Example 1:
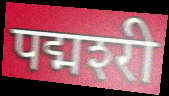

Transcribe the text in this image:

पद्मश्री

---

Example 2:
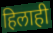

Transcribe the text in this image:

हिलाही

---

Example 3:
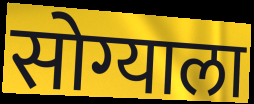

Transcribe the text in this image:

सोग्याला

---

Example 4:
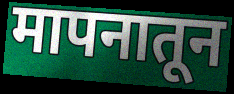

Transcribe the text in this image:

मापनातून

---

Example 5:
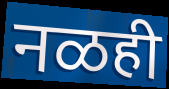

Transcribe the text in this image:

नळही